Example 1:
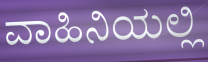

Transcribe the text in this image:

ವಾಹಿನಿಯಲ್ಲಿ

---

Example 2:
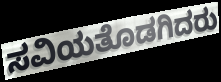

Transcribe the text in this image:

ಸವಿಯತೊಡಗಿದರು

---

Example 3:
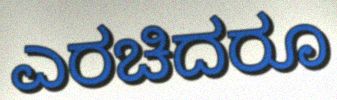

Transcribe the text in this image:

ಎರಚಿದರೂ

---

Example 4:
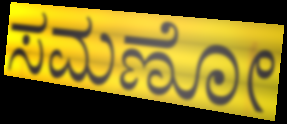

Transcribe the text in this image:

ಸಮಣೋ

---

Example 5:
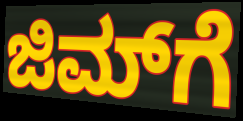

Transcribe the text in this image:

ಜಿಮ್‌ಗೆ